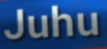
Juhu